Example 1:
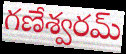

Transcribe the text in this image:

గణేశ్వరమ్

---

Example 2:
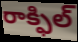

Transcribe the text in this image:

రాక్ఫిల్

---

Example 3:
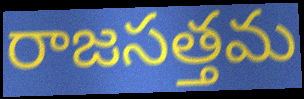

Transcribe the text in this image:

రాజసత్తమ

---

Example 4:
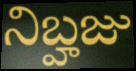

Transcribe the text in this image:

నిబ్హజు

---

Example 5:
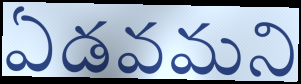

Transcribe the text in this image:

ఏడవమని